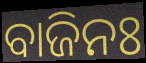
ବାଜିନଃ